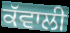
ਕੱਵਾਲੀ